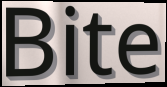
Bite